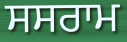
ਸਸਰਾਮ